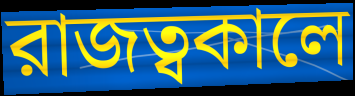
রাজত্বকালে